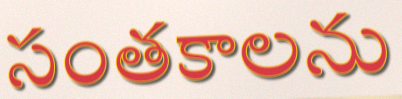
సంతకాలను